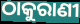
ଠାକୁରାଣୀ